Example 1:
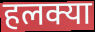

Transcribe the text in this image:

हलक्या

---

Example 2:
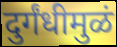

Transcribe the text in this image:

दुर्गंधीमुळं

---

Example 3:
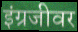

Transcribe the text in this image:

इंग्रजीवर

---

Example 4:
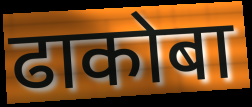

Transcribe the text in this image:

ढाकोबा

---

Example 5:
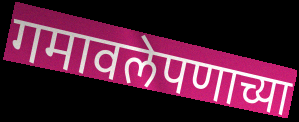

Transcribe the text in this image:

गमावलेपणाच्या